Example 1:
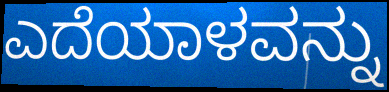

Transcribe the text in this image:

ಎದೆಯಾಳವನ್ನು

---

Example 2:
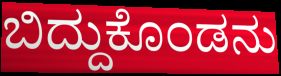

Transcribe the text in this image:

ಬಿದ್ದುಕೊಂಡನು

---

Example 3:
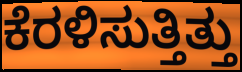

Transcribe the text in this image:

ಕೆರಳಿಸುತ್ತಿತ್ತು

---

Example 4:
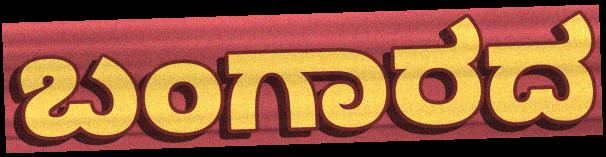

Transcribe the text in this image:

ಬಂಗಾರದ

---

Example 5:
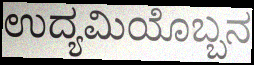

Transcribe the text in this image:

ಉದ್ಯಮಿಯೊಬ್ಬನ